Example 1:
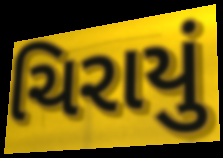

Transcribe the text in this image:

ચિરાયું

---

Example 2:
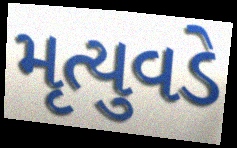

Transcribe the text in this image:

મૃત્યુવડે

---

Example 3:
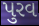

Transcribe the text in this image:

પુરવ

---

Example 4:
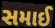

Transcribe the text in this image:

સમાઈ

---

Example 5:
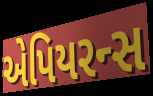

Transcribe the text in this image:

એપિયરન્સ